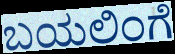
ಬಯಲಿಂಗೆ